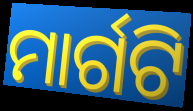
ମାର୍ଗଟି